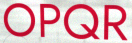
OPQR